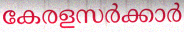
കേരളസർക്കാർ